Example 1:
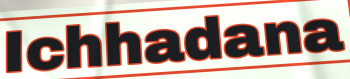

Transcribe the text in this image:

Ichhadana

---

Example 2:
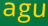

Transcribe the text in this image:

agu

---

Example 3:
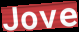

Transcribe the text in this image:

Jove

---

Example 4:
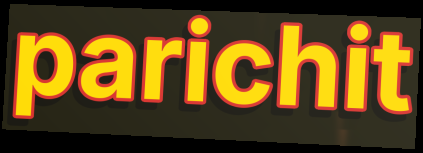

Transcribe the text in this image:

parichit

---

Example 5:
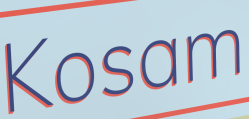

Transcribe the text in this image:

Kosam